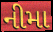
નીમા